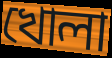
খোলা